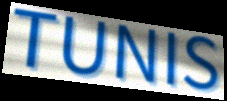
TUNIS